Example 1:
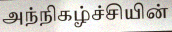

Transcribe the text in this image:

அந்நிகழ்ச்சியின்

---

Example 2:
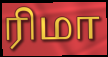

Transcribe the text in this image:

ரிமா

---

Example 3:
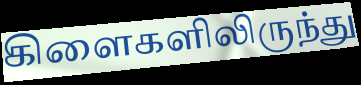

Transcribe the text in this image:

கிளைகளிலிருந்து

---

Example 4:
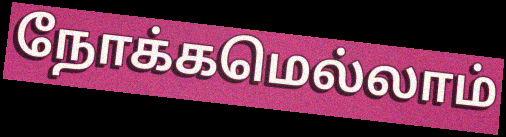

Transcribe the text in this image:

நோக்கமெல்லாம்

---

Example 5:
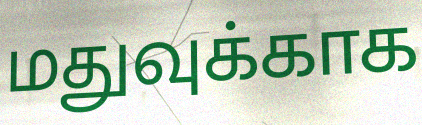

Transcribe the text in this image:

மதுவுக்காக